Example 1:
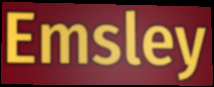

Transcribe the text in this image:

Emsley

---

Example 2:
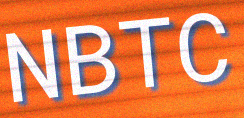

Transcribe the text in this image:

NBTC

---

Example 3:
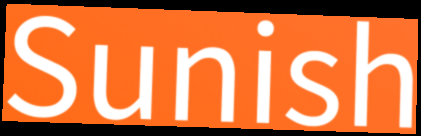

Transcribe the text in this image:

Sunish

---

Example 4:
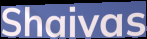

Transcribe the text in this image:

Shaivas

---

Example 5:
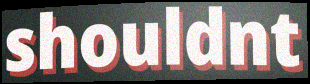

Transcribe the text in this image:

shouldnt